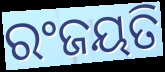
ରଂଜୟତି